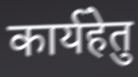
कार्यहेतु